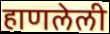
हाणलेली